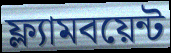
ফ্ল্যামবয়েন্ট